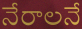
నేరాలనే